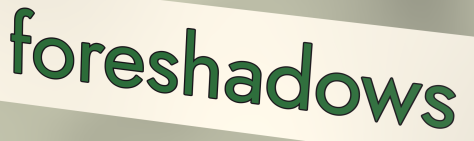
foreshadows